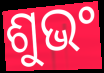
ଶୁଭଂ